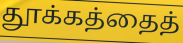
தூக்கத்தைத்